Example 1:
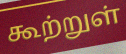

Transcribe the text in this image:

கூற்றுள்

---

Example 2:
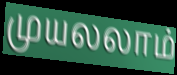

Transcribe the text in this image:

முயலலாம்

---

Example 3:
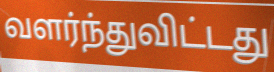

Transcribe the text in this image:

வளர்ந்துவிட்டது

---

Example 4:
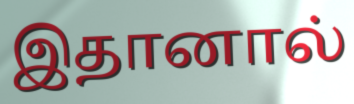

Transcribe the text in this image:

இதானால்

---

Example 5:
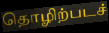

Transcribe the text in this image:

தொழிற்படச்